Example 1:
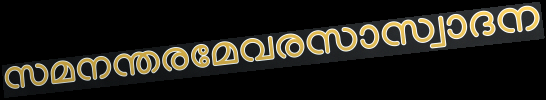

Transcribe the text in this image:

സമനന്തരമേവരസാസ്വാദന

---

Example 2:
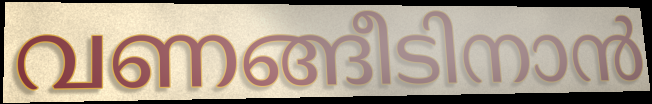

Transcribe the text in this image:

വണങ്ങീടിനാൻ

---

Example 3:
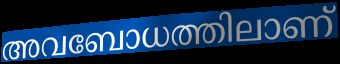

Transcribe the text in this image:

അവബോധത്തിലാണ്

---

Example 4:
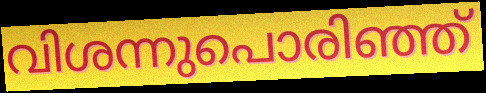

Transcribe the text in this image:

വിശന്നുപൊരിഞ്ഞ്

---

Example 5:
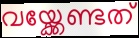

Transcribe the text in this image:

വയ്ക്കേണ്ടത്